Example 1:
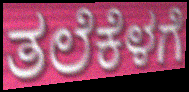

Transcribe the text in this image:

ತಲೆಕೆಳಗೆ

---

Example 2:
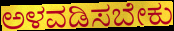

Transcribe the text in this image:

ಅಳವಡಿಸಬೇಕು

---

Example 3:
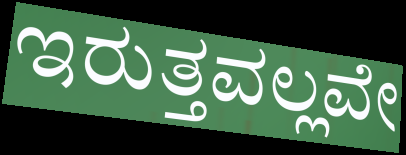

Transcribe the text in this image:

ಇರುತ್ತವಲ್ಲವೇ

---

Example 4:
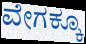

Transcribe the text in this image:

ವೇಗಕ್ಕೂ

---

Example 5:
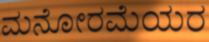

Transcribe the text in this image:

ಮನೋರಮೆಯರ